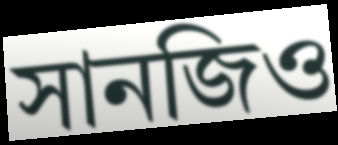
সানজিও